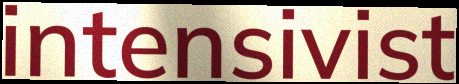
intensivist